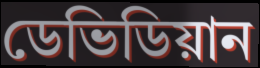
ডেভিডিয়ান